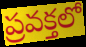
ప్రవక్తలో